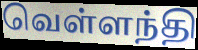
வெள்ளந்தி